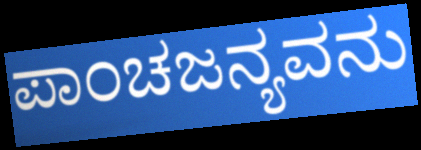
ಪಾಂಚಜನ್ಯವನು